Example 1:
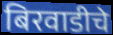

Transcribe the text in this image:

बिरवाडीचे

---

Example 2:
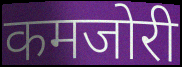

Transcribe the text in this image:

कमजोरी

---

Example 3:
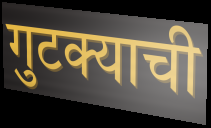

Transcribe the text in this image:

गुटक्याची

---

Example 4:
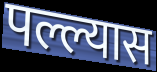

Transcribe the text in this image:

पल्ल्यास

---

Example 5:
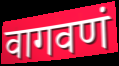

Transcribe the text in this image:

वागवणं